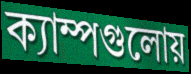
ক্যাম্পগুলোয়